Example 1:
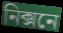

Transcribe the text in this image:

নিক্সনে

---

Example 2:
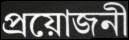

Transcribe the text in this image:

প্ৰয়োজনী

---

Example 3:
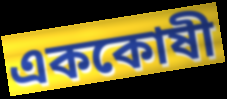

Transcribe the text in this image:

এককোষী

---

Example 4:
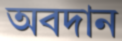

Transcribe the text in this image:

অবদান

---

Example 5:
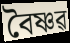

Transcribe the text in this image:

বৈষ্ণৱ